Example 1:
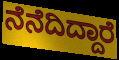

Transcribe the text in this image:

ನೆನೆದಿದ್ದಾರೆ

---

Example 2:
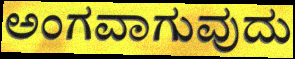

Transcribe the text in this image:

ಅಂಗವಾಗುವುದು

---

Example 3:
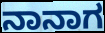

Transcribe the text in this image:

ನಾನಾಗ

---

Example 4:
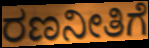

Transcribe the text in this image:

ರಣನೀತಿಗೆ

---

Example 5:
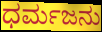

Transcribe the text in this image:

ಧರ್ಮಜನು